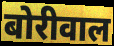
बोरीवाल